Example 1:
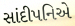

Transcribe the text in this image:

સાંદીપનિએ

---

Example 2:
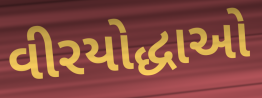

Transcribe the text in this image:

વીરયોદ્ધાઓ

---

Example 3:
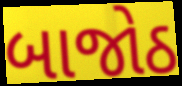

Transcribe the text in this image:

બાજોઠ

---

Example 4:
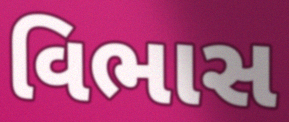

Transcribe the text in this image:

વિભાસ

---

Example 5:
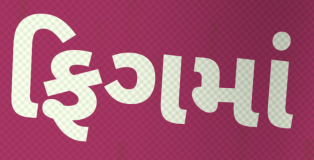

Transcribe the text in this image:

ફિગમાં